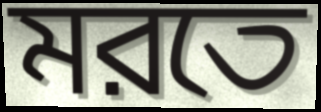
মরতে